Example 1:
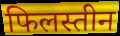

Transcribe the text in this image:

फिलस्तीन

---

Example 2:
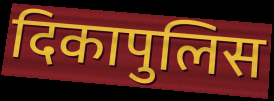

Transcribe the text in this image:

दिकापुलिस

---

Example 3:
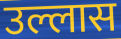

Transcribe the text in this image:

उल्‍लास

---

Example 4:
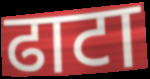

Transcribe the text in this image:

ढाटा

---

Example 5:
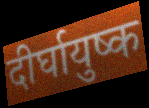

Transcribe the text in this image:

दीर्घायुष्क